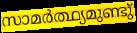
സാമർത്ഥ്യമുണ്ടു്